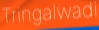
Tringalwadi